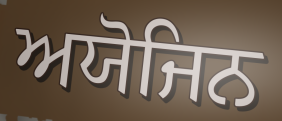
ਅਯੋਜਿਨ